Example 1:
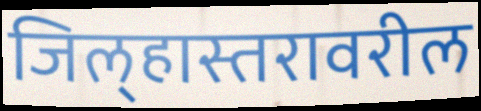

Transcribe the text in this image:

जिल्हास्तरावरील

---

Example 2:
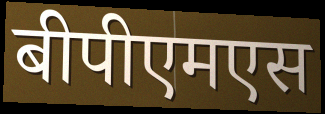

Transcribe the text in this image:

बीपीएमएस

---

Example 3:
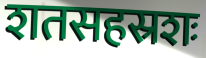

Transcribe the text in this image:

शतसहस्रशः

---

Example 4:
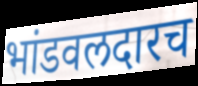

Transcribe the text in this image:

भांडवलदारच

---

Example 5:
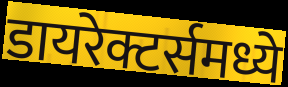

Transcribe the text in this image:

डायरेक्टर्समध्ये